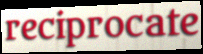
reciprocate